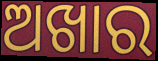
ଅଖାର